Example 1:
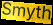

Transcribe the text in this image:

Smyth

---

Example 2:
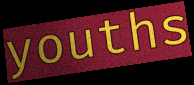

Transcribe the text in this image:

youths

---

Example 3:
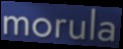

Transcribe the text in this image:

morula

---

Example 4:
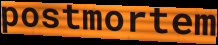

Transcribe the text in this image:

postmortem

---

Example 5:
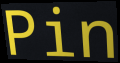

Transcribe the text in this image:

Pin